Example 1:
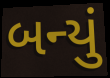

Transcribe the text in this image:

બન્યું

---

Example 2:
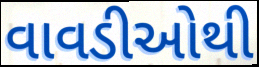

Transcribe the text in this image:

વાવડીઓથી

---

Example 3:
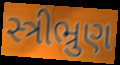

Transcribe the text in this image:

સ્ત્રીભ્રુણ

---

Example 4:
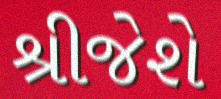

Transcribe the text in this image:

શ્રીજેશે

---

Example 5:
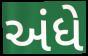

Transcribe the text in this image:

અંધે